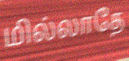
மில்லாதே